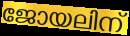
ജോയലിന്